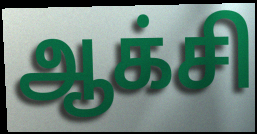
ஆக்சி